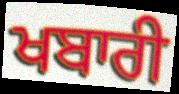
ਖਬਾਰੀ